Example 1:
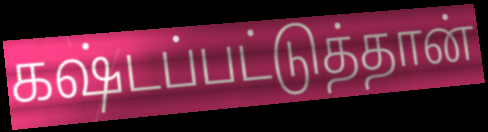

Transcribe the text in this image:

கஷ்டப்பட்டுத்தான்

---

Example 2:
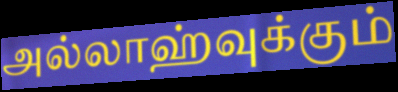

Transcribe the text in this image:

அல்லாஹ்வுக்கும்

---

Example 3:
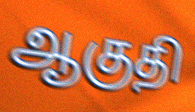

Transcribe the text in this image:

ஆகுதி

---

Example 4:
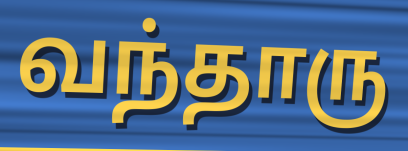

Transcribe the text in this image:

வந்தாரு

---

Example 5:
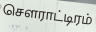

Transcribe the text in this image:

சௌராட்டிரம்